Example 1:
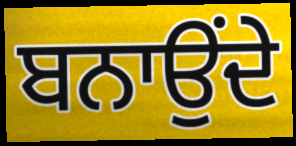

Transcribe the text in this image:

ਬਨਾਉਂਦੇ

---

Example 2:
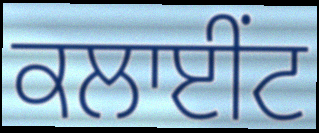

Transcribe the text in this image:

ਕਲਾਈਂਟ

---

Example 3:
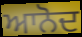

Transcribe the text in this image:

ਆਨੋਦ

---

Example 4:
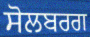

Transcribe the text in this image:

ਸੋਲਬਰਗ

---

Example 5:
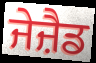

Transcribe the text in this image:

ਜੇਜ਼ੈਡ